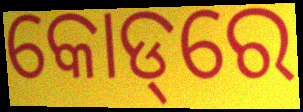
କୋଡ୍‌ରେ